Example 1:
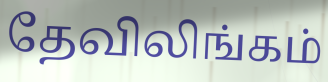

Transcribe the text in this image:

தேவிலிங்கம்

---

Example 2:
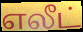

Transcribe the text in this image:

எலீட்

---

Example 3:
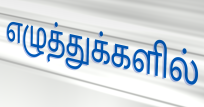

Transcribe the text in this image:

எழுத்துக்களில்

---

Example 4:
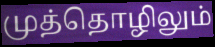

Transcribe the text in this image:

முத்தொழிலும்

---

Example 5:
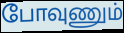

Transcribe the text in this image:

போவுணும்